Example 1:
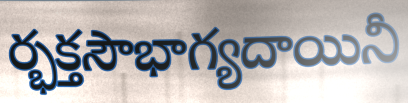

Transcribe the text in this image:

ర్భక్తసౌభాగ్యదాయినీ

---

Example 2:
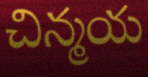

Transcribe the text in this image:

చిన్మయ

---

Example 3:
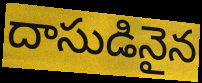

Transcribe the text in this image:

దాసుడినైన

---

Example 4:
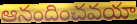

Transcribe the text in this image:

ఆనందించవయా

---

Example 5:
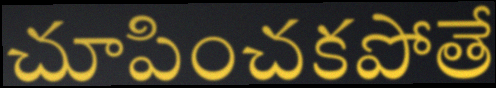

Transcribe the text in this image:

చూపించకపోతే